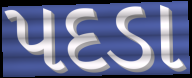
પદડા